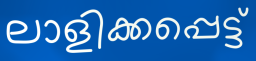
ലാളിക്കപ്പെട്ട്